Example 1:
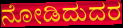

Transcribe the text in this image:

ನೋಡಿದುದರ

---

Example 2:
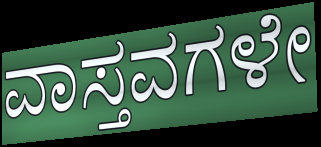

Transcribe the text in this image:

ವಾಸ್ತವಗಳೇ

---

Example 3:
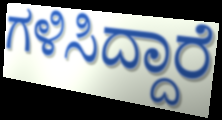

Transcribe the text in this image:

ಗಳಿಸಿದ್ದಾರೆ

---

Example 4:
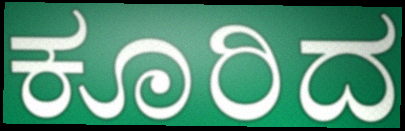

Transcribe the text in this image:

ಕೂರಿದ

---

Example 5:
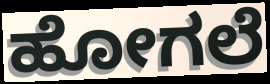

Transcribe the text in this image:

ಹೋಗಲೆ